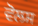
ਵੋਲਸ